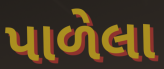
પાળેલા